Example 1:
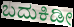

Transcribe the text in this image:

ಬದುಕಿಡೀ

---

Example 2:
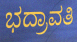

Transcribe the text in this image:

ಭದ್ರಾವತಿ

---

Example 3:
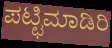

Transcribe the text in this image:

ಪಟ್ಟಿಮಾಡಿರಿ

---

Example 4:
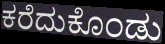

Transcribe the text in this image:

ಕರೆದುಕೊಂಡು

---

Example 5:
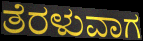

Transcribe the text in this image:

ತೆರಳುವಾಗ